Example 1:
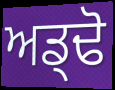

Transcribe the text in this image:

ਅਡ੍ਢੋ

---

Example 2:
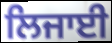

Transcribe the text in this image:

ਲਿਜਾਈ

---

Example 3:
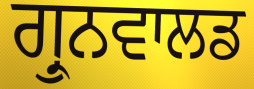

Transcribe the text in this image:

ਗ੍ਰੁਨਵਾਲਡ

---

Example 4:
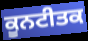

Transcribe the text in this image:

ਕੂਨਟੀਤਕ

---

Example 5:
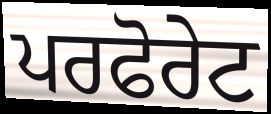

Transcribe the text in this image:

ਪਰਫੋਰੇਟ